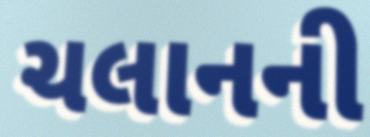
ચલાનની